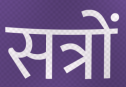
सत्रों